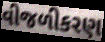
વીજળીકરણ